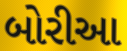
બોરીઆ